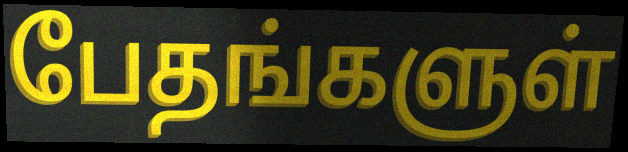
பேதங்களுள்